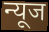
न्यूज